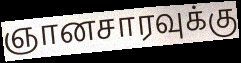
ஞானசாரவுக்கு